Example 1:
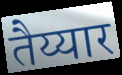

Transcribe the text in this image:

तैय्यार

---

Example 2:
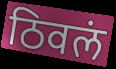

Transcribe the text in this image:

ठिवलं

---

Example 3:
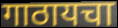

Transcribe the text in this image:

गाठायचा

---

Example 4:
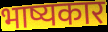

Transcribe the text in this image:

भाष्यकार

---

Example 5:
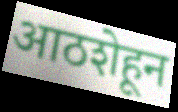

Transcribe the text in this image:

आठशेहून